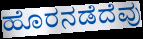
ಹೊರನಡೆದೆವು